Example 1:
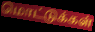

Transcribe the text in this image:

மொட்டுக்கள்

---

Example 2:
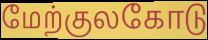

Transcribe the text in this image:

மேற்குலகோடு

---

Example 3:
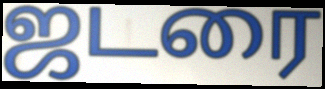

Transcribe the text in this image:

ஜடரை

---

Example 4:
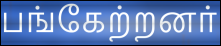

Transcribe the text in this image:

பங்கேற்றனர்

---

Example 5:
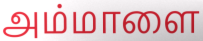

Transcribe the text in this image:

அம்மாளை